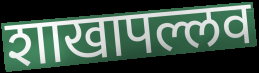
शाखापल्लव